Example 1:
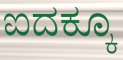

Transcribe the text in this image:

ಐದಕ್ಕೂ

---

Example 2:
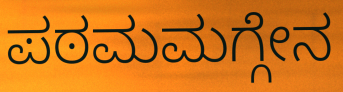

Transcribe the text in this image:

ಪಠಮಮಗ್ಗೇನ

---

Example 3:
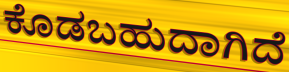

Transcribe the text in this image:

ಕೊಡಬಹುದಾಗಿದೆ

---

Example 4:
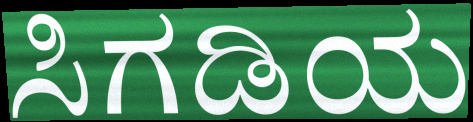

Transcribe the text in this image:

ಸಿಗಡಿಯ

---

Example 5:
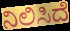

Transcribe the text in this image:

ನಿಲಿಸಿದೆ